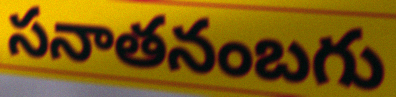
సనాతనంబగు